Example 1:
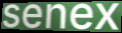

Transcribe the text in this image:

senex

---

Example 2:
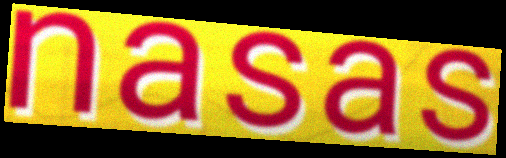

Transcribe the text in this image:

nasas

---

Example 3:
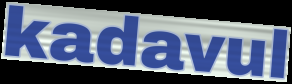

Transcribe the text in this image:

kadavul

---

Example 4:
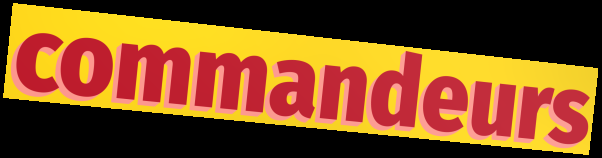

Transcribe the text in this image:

commandeurs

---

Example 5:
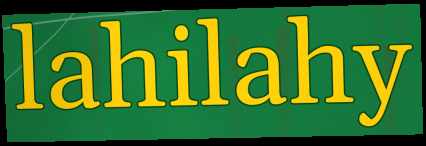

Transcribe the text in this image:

lahilahy